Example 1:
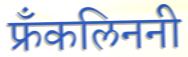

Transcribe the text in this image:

फ्रँकलिननी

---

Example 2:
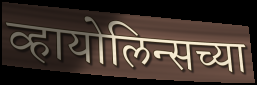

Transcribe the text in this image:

व्हायोलिन्सच्या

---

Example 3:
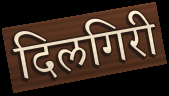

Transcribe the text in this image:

दिलगिरी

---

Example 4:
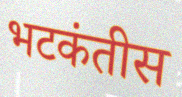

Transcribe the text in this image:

भटकंतीस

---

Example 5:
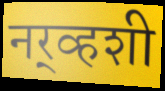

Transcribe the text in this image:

नर्व्हशी